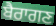
ਬੈਰਾਗਣ